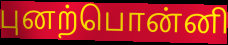
புனற்பொன்னி